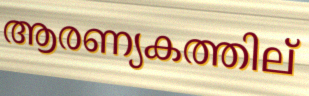
ആരണ്യകത്തില്